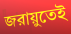
জরায়ুতেই